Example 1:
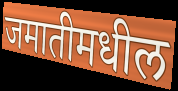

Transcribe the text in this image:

जमातीमधील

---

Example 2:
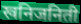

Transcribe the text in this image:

खनिजनिती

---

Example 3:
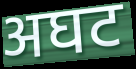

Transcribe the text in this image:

अघट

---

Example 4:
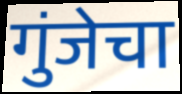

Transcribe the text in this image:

गुंजेचा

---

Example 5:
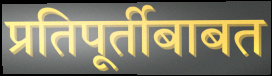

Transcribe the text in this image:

प्रतिपूर्तीबाबत